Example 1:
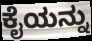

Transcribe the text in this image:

ಕೈಯನ್ನು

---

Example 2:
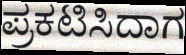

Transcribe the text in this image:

ಪ್ರಕಟಿಸಿದಾಗ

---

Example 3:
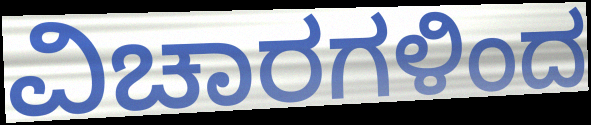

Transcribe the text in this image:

ವಿಚಾರಗಳಿಂದ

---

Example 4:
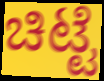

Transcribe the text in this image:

ಚಿಟ್ಟೆ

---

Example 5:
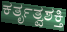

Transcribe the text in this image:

ಕರ್ತೃತ್ವಶಕ್ತಿ